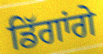
ਡਿੱਗਾਂਗੇ